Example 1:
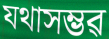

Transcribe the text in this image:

যথাসম্ভৱ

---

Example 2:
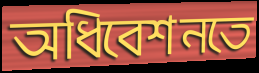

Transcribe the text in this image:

অধিবেশনতে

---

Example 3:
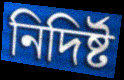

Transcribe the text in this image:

নিদিৰ্ষ্ট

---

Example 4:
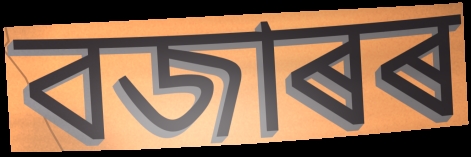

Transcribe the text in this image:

বজাৰৰ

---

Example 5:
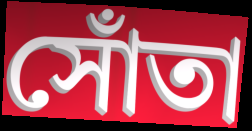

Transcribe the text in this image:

সোঁতা